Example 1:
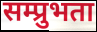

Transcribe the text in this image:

सम्प्रुभता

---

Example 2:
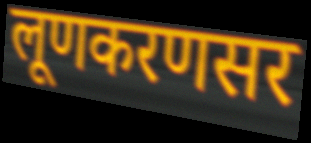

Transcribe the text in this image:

लूणकरणसर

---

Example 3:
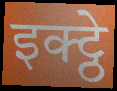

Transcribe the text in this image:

इक्ट्ठे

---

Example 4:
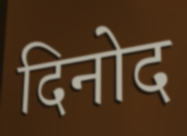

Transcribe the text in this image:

दिनोद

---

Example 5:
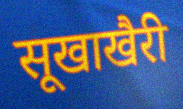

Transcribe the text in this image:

सूखाखैरी